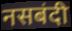
नसबंदी